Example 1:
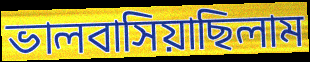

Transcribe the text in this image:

ভালবাসিয়াছিলাম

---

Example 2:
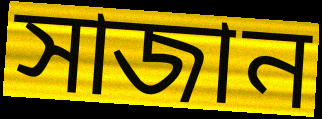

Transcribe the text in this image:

সাজান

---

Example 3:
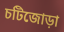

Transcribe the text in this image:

চটিজোড়া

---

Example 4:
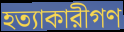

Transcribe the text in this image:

হত্যাকারীগণ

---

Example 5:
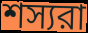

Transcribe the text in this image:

শস্যরা